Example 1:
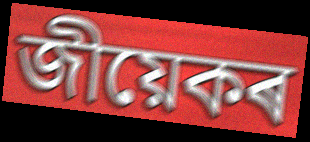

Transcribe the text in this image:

জীয়েকৰ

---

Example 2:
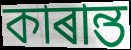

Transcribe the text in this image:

কাৰান্ত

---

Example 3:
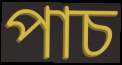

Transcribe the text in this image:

পাচ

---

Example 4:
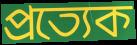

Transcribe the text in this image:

প্ৰত্যেক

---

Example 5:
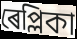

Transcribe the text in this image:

ৰেপ্লিকা